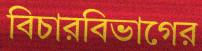
বিচারবিভাগের